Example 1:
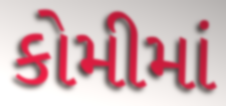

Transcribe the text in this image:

કોમીમાં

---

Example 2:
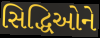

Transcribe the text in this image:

સિદ્ધિઓને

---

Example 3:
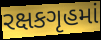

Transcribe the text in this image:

રક્ષકગૃહમાં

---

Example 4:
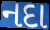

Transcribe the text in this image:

નદા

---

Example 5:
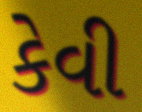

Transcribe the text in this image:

કેવી